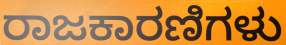
ರಾಜಕಾರಣಿಗಳು